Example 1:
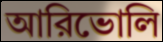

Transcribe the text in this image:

আরিভোলি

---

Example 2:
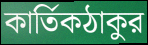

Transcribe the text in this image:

কার্তিকঠাকুর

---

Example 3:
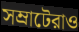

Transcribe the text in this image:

সম্রাটেরাও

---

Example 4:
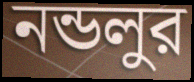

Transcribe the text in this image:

নন্ডলুর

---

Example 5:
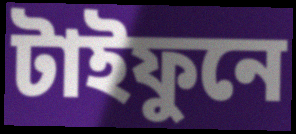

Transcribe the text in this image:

টাইফুনে